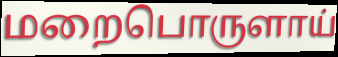
மறைபொருளாய்